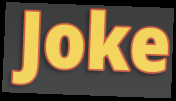
Joke